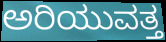
ಅರಿಯುವತ್ತ